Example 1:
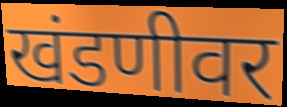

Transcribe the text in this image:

खंडणीवर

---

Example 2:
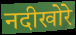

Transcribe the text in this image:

नदीखोरे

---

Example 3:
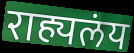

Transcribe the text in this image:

राह्यलंय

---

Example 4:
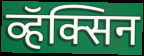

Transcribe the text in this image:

व्हॅक्सिन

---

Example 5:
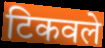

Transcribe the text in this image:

टिकवले